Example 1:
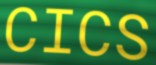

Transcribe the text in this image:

CICS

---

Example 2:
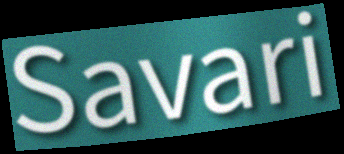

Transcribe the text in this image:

Savari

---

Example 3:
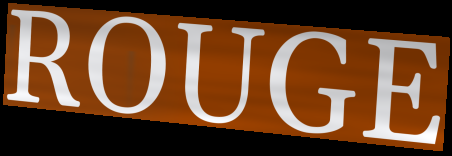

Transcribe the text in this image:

ROUGE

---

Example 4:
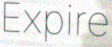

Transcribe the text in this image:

Expire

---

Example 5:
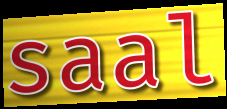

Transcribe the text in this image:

saal